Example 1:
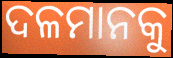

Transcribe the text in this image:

ଦଳମାନକୁ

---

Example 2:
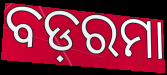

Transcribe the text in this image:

ବଡ଼ରମା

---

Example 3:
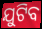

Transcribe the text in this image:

ଯୁଟିବ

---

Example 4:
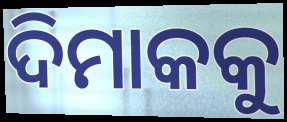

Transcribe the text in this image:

ଦିମାକକୁ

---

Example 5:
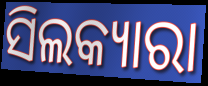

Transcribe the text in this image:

ସିଲକ୍ୟାରା